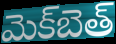
మెక్‌బెత్